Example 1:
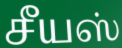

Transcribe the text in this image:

சீயஸ்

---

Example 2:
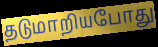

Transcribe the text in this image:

தடுமாறியபோது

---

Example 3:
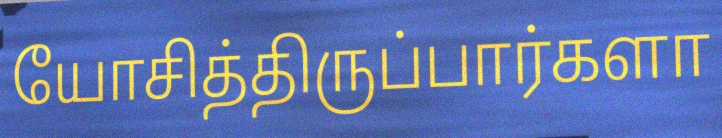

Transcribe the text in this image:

யோசித்திருப்பார்களா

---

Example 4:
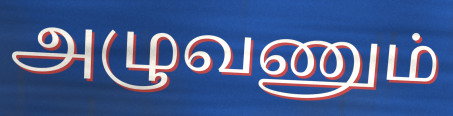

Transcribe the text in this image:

அழுவணும்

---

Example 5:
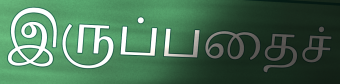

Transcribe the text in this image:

இருப்பதைச்